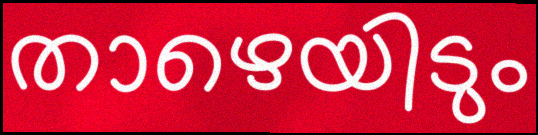
താഴെയിടും